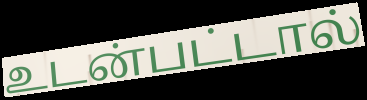
உடன்பட்டால்